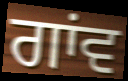
ਗਾਂਵ